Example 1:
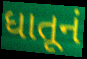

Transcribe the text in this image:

ધાતૂનં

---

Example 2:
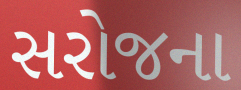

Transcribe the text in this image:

સરોજના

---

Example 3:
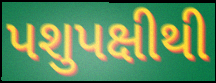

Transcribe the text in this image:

પશુપક્ષીથી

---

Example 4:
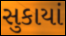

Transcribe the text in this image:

સુકાયાં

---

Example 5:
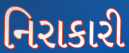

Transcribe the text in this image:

નિરાકારી